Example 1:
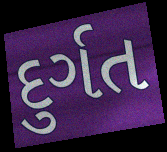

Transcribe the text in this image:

દુર્ગત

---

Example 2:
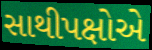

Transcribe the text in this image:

સાથીપક્ષોએ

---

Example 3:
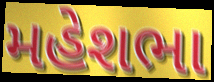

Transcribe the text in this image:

મહેશભા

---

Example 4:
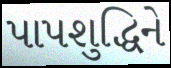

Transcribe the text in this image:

પાપશુદ્ધિને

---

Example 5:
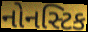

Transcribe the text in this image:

નોનસ્ટિક